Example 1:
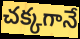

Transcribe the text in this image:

చక్కగానే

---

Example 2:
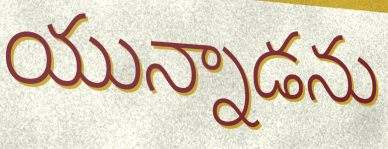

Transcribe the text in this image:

యున్నాడను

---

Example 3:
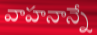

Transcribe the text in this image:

వాహనాన్నే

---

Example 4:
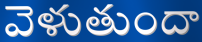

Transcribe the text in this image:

వెళుతుందా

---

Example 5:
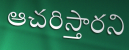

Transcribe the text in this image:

ఆచరిస్తారని